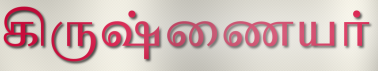
கிருஷ்ணையர்